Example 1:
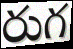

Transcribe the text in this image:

రుగ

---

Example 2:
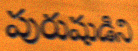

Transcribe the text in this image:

పురుషుడిని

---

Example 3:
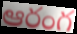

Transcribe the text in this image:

ఆరంగ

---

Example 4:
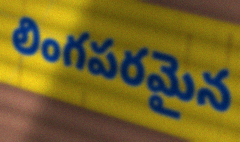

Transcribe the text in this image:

లింగపరమైన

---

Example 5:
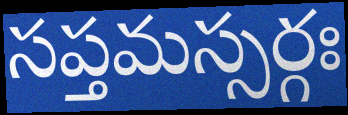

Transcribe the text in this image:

సప్తమస్సర్గః